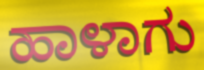
ಹಾಳಾಗು